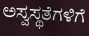
ಅಸ್ವಸ್ಥತೆಗಳಿಗೆ